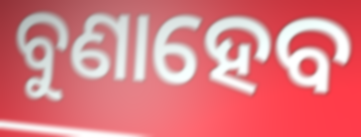
ବୁଣାହେବ